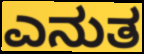
ಎನುತ